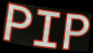
PIP